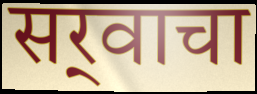
सर्वाचा